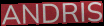
ANDRIS